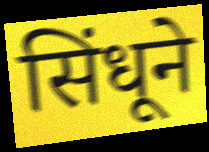
सिंधूने